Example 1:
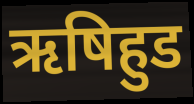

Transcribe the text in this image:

ऋषिहुड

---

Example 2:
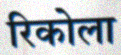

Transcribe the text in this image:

रिकोला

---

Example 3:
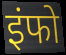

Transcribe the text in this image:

इंफो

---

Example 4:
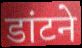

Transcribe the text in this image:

डांटने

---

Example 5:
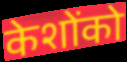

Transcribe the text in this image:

केशोंको